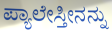
ಪ್ಯಾಲೇಸ್ತೀನನ್ನು